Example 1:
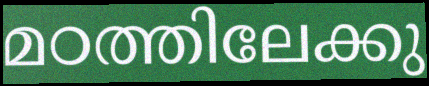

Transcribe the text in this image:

മഠത്തിലേക്കു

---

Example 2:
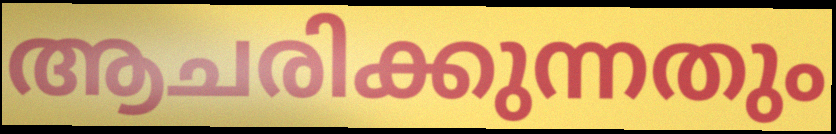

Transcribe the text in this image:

ആചരിക്കുന്നതും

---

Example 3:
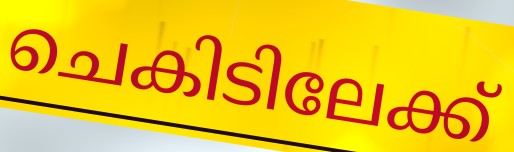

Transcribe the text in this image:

ചെകിടിലേക്ക്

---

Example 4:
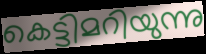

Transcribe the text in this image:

കെട്ടിമറിയുന്നു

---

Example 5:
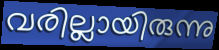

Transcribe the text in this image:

വരില്ലായിരുന്നു